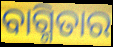
ବାଗ୍ମିତାର